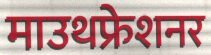
माउथफ्रेशनर